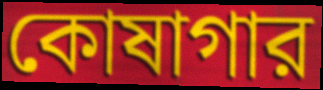
কোষাগার